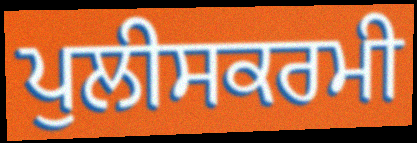
ਪੁਲੀਸਕਰਮੀ